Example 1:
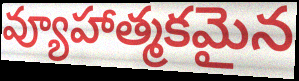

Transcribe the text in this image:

వ్యూహాత్మకమైన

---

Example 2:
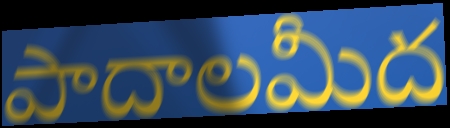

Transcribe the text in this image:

పాదాలమీద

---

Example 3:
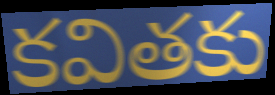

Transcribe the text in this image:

కవితకు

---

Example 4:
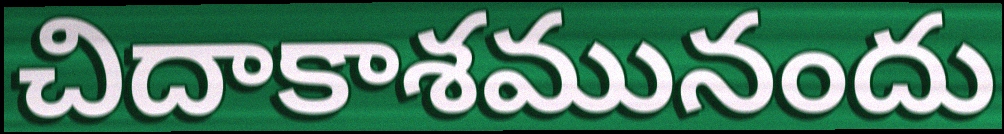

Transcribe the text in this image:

చిదాకాశమునందు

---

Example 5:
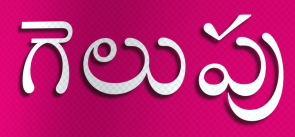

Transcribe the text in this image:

గెలుపు